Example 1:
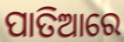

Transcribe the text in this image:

ପାତିଆରେ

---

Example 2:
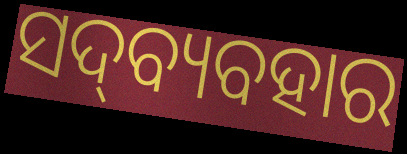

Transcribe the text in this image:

ସଦ୍‍ବ୍ୟବହାର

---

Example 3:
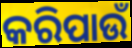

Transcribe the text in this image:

କରିପାଉଁ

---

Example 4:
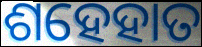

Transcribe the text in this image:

ଶହେହାତ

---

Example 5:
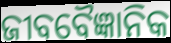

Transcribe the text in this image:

ଜୀବବୈଜ୍ଞାନିକ